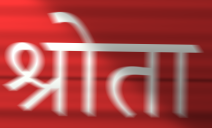
श्रोता